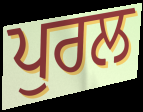
ਪੁਰਲ